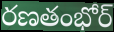
రణతంభోర్